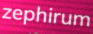
zephirum